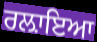
ਰਲ਼ਾਇਆ